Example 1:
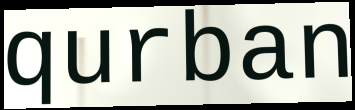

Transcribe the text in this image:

qurban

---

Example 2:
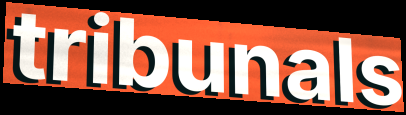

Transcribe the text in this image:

tribunals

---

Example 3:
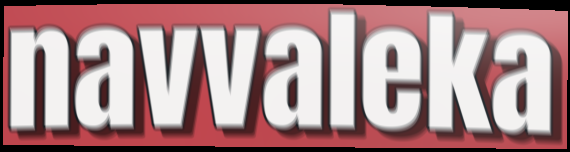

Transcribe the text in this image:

navvaleka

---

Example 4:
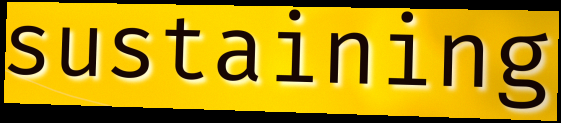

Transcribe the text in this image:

sustaining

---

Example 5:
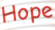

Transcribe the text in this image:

Hope